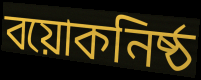
বয়োকনিষ্ঠ